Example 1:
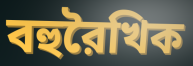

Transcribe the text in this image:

বহুরৈখিক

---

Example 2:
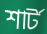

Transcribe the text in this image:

শার্ট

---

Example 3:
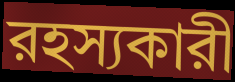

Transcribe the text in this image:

রহস্যকারী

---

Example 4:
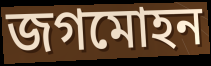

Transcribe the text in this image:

জগমোহন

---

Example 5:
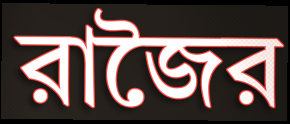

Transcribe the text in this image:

রাজৈর